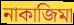
নাকাজিমা